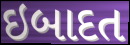
ઇબાદત